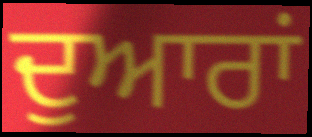
ਦੁਆਰਾਂ